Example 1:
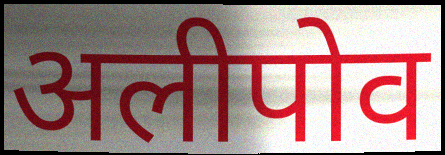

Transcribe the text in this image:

अलीपोव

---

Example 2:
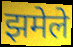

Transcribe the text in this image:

झमेले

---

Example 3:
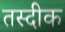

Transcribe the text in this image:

तस्दीक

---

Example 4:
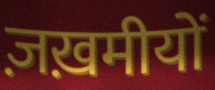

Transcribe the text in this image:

ज़ख़मीयों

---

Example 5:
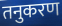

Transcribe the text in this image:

तनुकरण